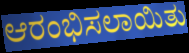
ಆರಂಭಿಸಲಾಯಿತು